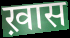
ख़ास